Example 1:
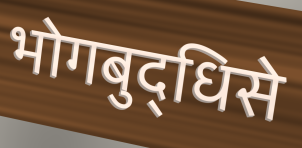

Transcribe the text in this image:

भोगबुद्धिसे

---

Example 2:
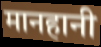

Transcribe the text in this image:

मानहानी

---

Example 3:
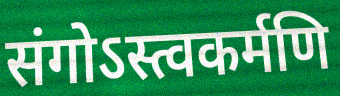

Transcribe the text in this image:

संगोऽस्त्वकर्मणि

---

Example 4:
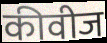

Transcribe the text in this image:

कीवीज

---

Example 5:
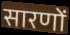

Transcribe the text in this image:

सारणों